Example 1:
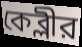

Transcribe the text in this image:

কেব্লীর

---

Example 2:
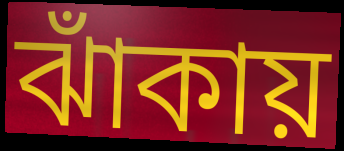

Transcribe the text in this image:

ঝাঁকায়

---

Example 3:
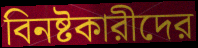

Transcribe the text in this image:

বিনষ্টকারীদের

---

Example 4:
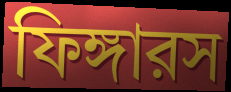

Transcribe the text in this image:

ফিঙ্গারস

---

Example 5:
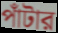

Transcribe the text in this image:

পাঁটার